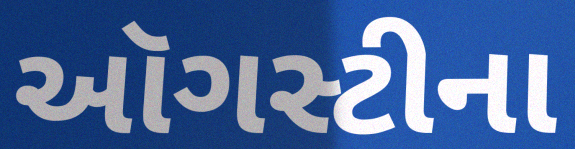
ઑગસ્ટીના